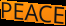
PEACE